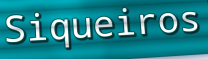
Siqueiros